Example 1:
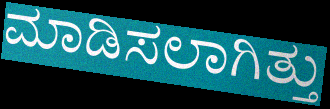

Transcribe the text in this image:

ಮಾಡಿಸಲಾಗಿತ್ತು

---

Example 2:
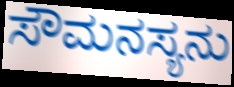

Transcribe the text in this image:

ಸೌಮನಸ್ಯನು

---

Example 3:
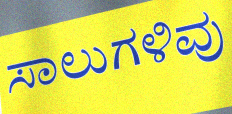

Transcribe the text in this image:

ಸಾಲುಗಳಿವು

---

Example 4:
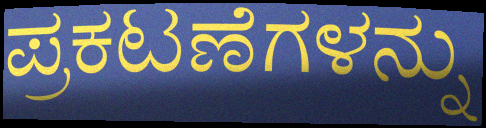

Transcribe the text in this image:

ಪ್ರಕಟಣೆಗಳನ್ನು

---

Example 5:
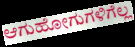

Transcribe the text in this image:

ಆಗುಹೋಗುಗಳಿಗೆಲ್ಲ